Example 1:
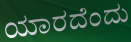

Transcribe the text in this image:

ಯಾರದೆಂದು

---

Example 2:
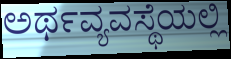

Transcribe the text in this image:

ಅರ್ಥವ್ಯವಸ್ಥೆಯಲ್ಲಿ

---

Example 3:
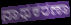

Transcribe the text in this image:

ನಾಥಕರಣಾ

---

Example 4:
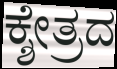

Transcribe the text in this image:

ಕ್ಶೇತ್ರದ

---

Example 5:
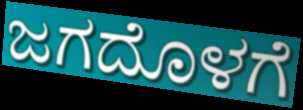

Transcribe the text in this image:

ಜಗದೊಳಗೆ